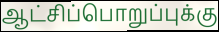
ஆட்சிப்பொறுப்புக்கு